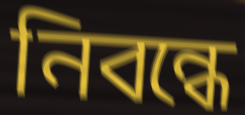
নিবন্ধে